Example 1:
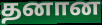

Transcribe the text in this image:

தனான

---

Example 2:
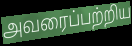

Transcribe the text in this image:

அவரைப்பற்றிய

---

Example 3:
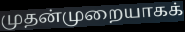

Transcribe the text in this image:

முதன்முறையாகக்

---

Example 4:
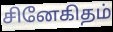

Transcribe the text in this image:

சினேகிதம்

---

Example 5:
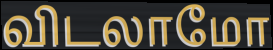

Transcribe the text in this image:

விடலாமோ